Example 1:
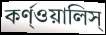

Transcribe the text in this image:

কর্ণ্ওয়ালিস্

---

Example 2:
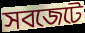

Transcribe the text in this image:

সবজেটে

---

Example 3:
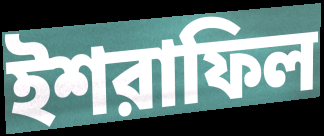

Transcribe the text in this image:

ইশরাফিল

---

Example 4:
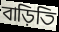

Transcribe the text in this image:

বাড়িতি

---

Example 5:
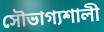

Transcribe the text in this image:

সৌভাগ্যশালী